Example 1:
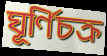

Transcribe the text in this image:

ঘূর্ণিচক্র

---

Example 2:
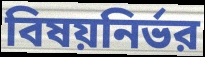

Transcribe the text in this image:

বিষয়নির্ভর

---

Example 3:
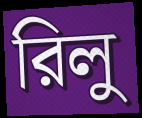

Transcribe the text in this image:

রিলু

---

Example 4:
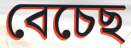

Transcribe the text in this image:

বেচেছ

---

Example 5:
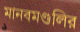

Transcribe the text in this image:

মানবমণ্ডলির